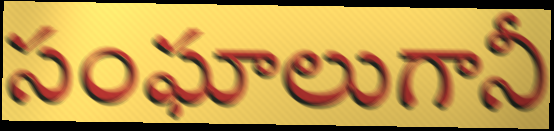
సంఘాలుగానీ